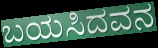
ಬಯಸಿದವನ